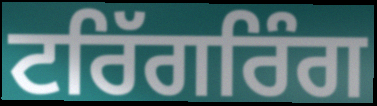
ਟਰਿੱਗਰਿੰਗ